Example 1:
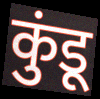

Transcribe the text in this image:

कुंडू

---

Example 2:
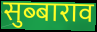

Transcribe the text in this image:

सुब्‍बाराव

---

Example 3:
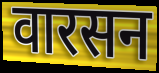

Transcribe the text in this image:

वारसन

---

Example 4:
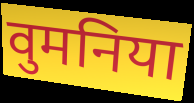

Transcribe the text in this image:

वुमनिया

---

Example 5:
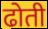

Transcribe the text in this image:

ढोती